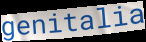
genitalia